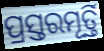
ପ୍ରସ୍ତରମୂର୍ତ୍ତି